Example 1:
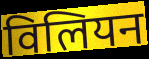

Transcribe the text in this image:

विलियन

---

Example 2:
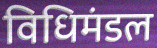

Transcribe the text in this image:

विधिमंडल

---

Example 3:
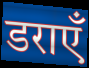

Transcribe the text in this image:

डराएँ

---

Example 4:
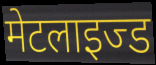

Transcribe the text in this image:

मेटलाइज्ड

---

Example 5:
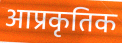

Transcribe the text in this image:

आप्रकृतिक